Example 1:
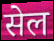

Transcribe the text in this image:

सेल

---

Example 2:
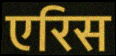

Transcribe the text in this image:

एरिस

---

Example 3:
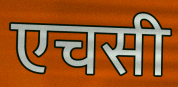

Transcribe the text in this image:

एचसी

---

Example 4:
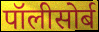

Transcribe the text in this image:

पॉलीसोर्ब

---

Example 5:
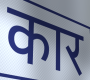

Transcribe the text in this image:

कार